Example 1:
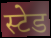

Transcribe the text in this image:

स्टेड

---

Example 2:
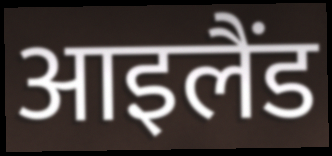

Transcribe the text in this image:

आइलैंड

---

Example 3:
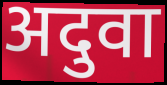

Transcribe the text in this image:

अदुवा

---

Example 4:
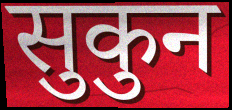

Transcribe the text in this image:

सुकुन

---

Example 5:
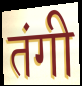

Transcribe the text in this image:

तंगी